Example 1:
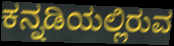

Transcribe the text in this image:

ಕನ್ನಡಿಯಲ್ಲಿರುವ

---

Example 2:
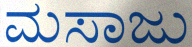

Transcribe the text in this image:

ಮಸಾಜು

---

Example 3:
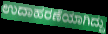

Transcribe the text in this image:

ಉದಾಹರಣೆಯಾಗಿದ್ದು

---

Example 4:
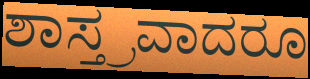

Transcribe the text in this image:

ಶಾಸ್ತ್ರವಾದರೂ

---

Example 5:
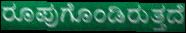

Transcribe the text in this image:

ರೂಪುಗೊಂಡಿರುತ್ತದೆ